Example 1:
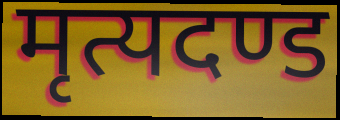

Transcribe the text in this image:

मृत्यदण्ड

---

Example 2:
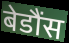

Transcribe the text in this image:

बेडौंस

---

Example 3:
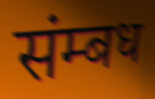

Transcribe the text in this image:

संम्बध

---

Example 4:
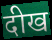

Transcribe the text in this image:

दीख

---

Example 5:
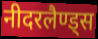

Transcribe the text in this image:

नीदरलैण्ड्स